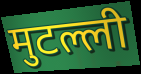
मुटल्ली